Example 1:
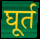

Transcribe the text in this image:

घूर्त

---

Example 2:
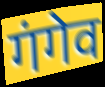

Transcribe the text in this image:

गंगेव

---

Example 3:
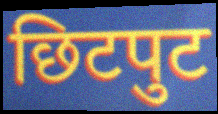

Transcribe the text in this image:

छिटपुट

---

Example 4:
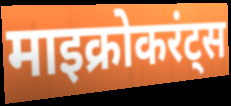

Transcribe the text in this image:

माइक्रोकरंट्स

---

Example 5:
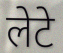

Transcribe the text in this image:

लेटे